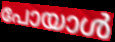
പോയാൾ